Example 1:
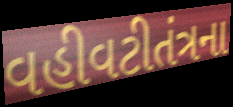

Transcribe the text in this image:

વહીવટીતંત્રના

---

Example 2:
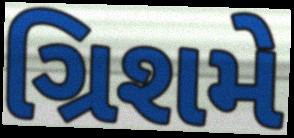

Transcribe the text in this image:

ગ્રિશમે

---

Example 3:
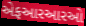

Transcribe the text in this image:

એફઆરઆરઓ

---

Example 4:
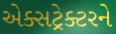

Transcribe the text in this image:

એક્સટ્રેક્ટરને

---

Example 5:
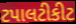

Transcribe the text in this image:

ટપાલટીકીટ